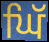
ਘਿੱ